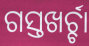
ଗସ୍ତଖର୍ଚ୍ଚା